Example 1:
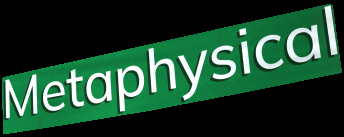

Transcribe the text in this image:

Metaphysical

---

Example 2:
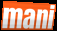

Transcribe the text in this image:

mani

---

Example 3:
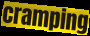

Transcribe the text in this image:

cramping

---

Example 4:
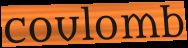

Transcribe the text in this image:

coulomb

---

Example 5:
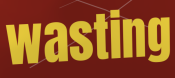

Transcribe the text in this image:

wasting